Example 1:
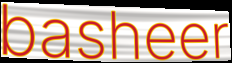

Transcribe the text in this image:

basheer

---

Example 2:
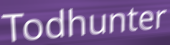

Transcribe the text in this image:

Todhunter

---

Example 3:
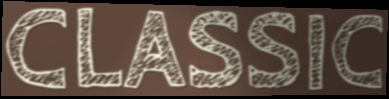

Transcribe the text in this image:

CLASSIC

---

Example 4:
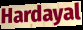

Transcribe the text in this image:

Hardayal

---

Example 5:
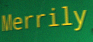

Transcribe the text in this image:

Merrily